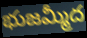
భుజమ్మీద